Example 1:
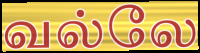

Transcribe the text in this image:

வல்லே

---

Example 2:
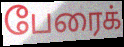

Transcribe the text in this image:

பேரைக்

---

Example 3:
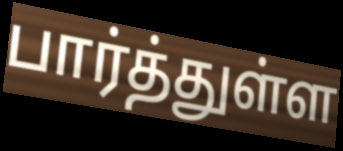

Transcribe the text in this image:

பார்த்துள்ள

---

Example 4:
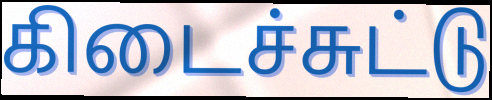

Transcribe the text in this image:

கிடைச்சுட்டு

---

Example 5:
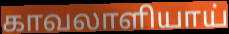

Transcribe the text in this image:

காவலாளியாய்